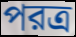
পরত্র